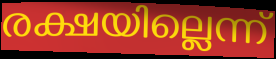
രക്ഷയില്ലെന്ന്